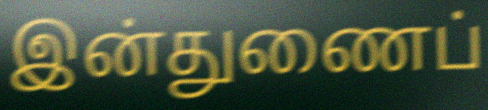
இன்துணைப்